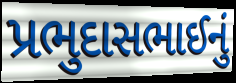
પ્રભુદાસભાઈનું